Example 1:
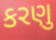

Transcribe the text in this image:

કરણુ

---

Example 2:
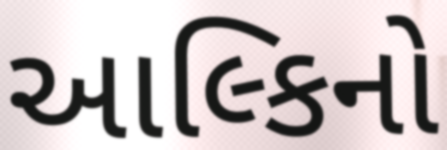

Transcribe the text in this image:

આલ્કિનો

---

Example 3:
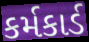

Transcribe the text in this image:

કર્મકાર્ડ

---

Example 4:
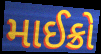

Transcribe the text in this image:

માઈક્રો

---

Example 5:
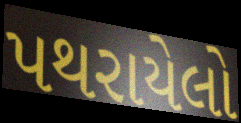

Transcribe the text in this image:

પથરાયેલો